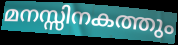
മനസ്സിനകത്തും